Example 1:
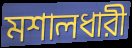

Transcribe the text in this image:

মশালধারী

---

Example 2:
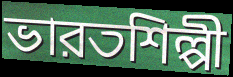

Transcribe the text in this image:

ভারতশিল্পী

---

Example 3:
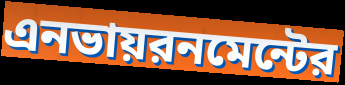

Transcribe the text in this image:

এনভায়রনমেন্টের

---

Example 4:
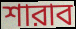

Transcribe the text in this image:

শারাব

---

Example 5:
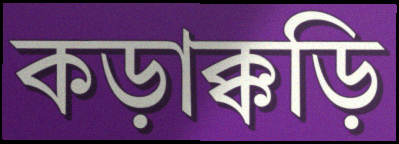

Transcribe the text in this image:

কড়াক্কড়ি